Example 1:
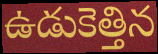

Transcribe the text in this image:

ఉడుకెత్తిన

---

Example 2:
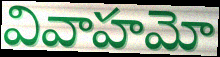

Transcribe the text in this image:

వివాహమో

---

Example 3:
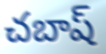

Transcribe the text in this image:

చబాష్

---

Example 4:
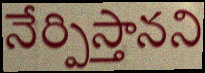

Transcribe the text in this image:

నేర్పిస్తానని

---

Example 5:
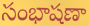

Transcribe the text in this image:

సంభాషణా